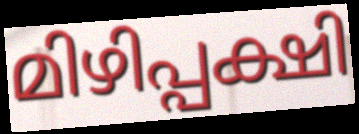
മിഴിപ്പക്ഷി